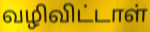
வழிவிட்டாள்